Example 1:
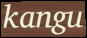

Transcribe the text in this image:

kangu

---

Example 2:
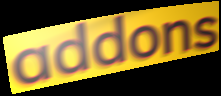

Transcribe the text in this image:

addons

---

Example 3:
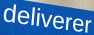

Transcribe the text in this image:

deliverer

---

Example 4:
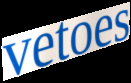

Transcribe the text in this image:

vetoes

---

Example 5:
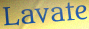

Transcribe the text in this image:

Lavate